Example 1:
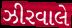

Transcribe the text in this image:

ઝીરવાલે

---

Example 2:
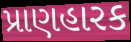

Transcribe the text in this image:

પ્રાણહારક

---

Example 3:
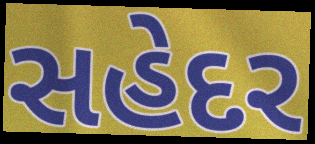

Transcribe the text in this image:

સહેદર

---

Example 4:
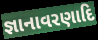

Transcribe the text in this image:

જ્ઞાનાવરણાદિ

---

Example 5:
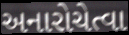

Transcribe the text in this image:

અનારોચેત્વા